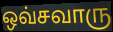
ஒவ்சவாரு